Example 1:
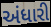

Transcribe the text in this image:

અંધારી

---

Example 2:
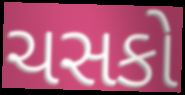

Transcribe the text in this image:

ચસકો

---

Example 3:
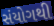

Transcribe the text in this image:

સંયોગથી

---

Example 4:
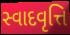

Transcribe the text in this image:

સ્વાદવૃત્તિ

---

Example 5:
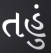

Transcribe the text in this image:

તહું